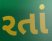
રતાં